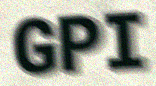
GPI